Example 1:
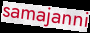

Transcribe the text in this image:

samajanni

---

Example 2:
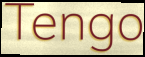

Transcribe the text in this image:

Tengo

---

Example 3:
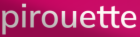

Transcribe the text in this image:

pirouette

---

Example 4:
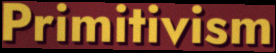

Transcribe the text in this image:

Primitivism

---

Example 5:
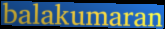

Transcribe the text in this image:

balakumaran